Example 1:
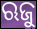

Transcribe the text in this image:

ଋଜୁ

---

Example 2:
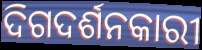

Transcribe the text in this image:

ଦିଗଦର୍ଶନକାରୀ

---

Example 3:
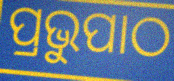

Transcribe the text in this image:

ପ୍ରଭୁପାଠ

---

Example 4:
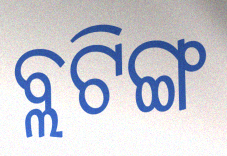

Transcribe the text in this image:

ବ୍ଲଟିଙ୍ଗ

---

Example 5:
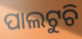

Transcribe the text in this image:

ପାଲଟୁଚି